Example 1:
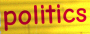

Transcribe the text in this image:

politics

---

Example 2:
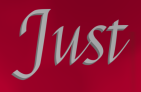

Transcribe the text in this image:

Just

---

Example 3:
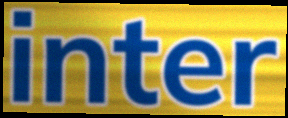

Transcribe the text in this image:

inter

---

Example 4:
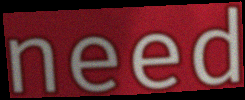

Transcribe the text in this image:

need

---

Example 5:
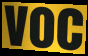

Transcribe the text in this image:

voc